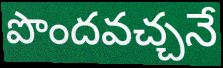
పొందవచ్చనే